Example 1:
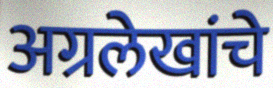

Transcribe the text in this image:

अग्रलेखांचे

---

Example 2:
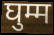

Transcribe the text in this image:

घुम्म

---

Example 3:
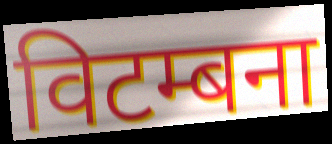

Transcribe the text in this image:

विटम्बना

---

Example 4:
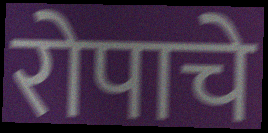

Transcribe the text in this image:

रोपाचे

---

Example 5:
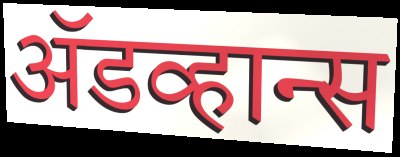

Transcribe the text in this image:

ॲडव्हान्स